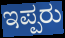
ಇಪ್ಪರು